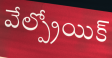
వేల్ప్రోయిక్